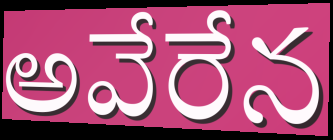
అవేరేన